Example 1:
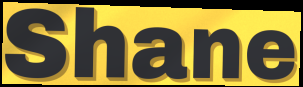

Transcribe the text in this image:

Shane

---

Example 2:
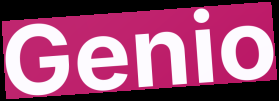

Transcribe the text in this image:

Genio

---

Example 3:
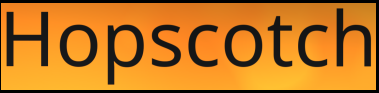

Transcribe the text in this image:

Hopscotch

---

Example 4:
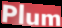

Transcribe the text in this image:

Plum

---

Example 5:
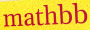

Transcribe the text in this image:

mathbb